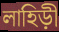
লাহিড়ী